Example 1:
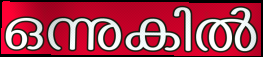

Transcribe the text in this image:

ഒന്നുകിൽ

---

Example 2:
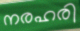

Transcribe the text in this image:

നരഹരി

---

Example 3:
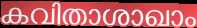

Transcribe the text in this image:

കവിതാശാഖാം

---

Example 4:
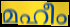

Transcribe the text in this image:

മഹീം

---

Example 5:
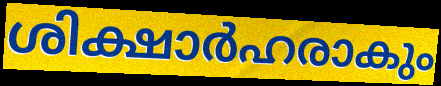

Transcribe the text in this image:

ശിക്ഷാർഹരാകും